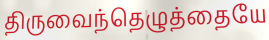
திருவைந்தெழுத்தையே